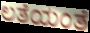
ಲತೆಯಂತೆ